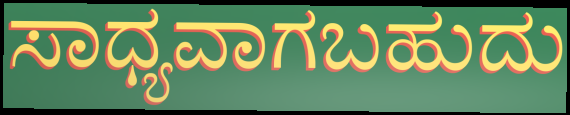
ಸಾಧ್ಯವಾಗಬಹುದು